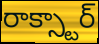
రాక్స్టార్